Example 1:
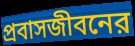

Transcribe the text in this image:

প্রবাসজীবনের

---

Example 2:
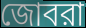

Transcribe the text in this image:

জোবরা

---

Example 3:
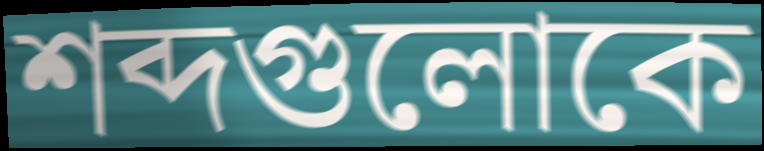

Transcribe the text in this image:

শব্দগুলোকে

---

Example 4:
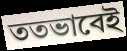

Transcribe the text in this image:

ততভাবেই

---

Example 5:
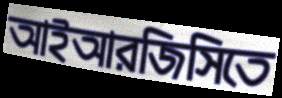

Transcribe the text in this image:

আইআরজিসিতে